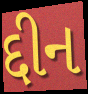
દ્દીન